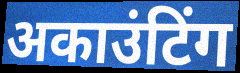
अकाउंटिंग